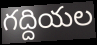
గద్దియల